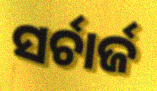
ସର୍ଚାର୍ଜ